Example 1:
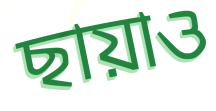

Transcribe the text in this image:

ছায়াও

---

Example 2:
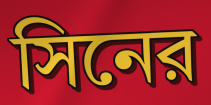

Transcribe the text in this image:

সিনের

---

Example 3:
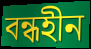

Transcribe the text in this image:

বন্ধহীন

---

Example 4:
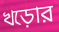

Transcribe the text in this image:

খড়োর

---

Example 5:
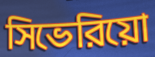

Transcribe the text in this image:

সিভেরিয়ো